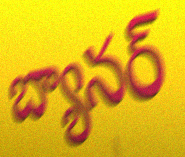
బ్యానర్